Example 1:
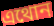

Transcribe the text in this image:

এথোন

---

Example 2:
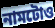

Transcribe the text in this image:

নামটোও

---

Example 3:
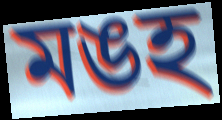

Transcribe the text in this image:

মঙহ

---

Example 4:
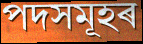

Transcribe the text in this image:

পদসমূহৰ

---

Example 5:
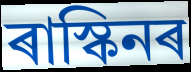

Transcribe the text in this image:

ৰাস্কিনৰ